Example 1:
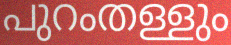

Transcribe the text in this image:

പുറംതള്ളും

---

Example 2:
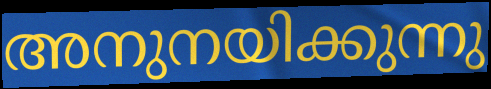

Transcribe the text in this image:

അനുനയിക്കുന്നു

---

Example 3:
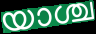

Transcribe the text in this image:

യാശ്ച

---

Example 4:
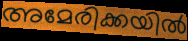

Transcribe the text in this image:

അമേരിക്കയിൽ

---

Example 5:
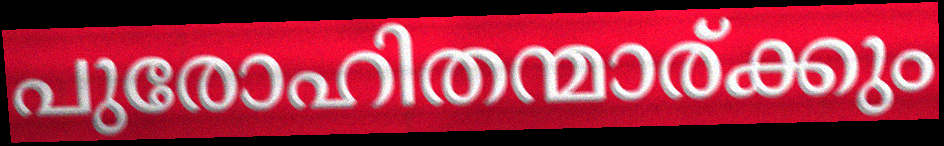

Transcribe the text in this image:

പുരോഹിതന്മാര്ക്കും